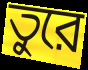
তুরে